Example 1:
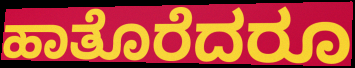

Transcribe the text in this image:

ಹಾತೊರೆದರೂ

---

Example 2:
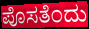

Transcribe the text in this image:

ಪೊಸತೆಂದು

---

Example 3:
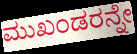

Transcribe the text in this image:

ಮುಖಂಡರನ್ನೇ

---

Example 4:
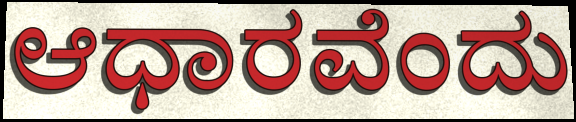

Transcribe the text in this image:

ಆಧಾರವೆಂದು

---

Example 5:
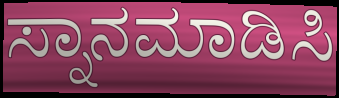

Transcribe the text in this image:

ಸ್ನಾನಮಾಡಿಸಿ